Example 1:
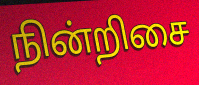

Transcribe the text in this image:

நின்றிசை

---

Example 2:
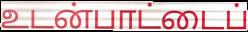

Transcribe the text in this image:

உடன்பாட்டைப்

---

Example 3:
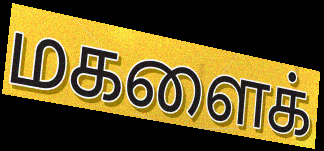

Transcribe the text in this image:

மகளைக்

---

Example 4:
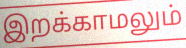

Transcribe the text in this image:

இறக்காமலும்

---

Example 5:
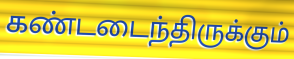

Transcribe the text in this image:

கண்டடைந்திருக்கும்